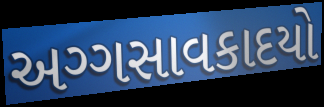
અગ્ગસાવકાદયો